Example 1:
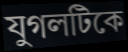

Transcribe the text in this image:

যুগলটিকে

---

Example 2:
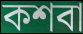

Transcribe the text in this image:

কশবা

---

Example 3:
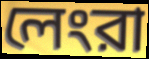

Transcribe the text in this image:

লেংরা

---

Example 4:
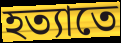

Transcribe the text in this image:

হত্যাতে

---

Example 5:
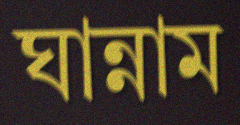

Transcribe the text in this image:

ঘান্নাম